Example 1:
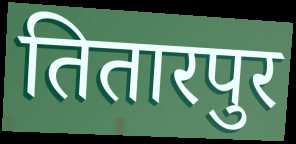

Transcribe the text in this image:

तितारपुर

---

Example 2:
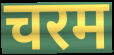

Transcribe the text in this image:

चरम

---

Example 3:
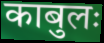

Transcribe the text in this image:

काबुलः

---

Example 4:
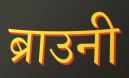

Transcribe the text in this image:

ब्राउनी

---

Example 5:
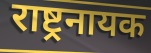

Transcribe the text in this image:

राष्ट्रनायक